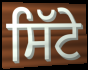
ਸਿੱਟੇ